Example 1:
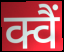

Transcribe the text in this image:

क्वैं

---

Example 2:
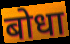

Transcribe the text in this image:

बोधा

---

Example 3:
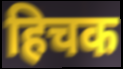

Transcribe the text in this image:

हिचक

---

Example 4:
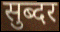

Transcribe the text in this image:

सुब्दर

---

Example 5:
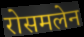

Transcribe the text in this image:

रोसमलेन